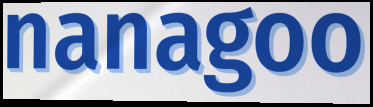
nanagoo